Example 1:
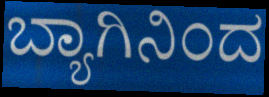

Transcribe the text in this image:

ಬ್ಯಾಗಿನಿಂದ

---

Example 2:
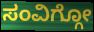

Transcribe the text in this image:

ಸಂವಿಗ್ಗೋ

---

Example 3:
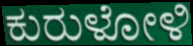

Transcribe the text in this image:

ಕುರುಳೋಳಿ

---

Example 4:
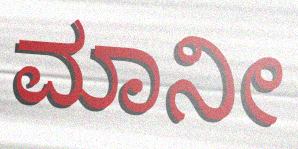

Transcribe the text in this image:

ಮಾನೀ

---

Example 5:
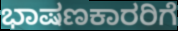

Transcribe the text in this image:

ಭಾಷಣಕಾರರಿಗೆ